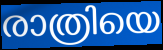
രാത്രിയെ